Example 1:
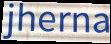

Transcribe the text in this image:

jherna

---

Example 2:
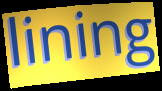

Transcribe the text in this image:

lining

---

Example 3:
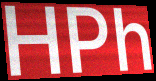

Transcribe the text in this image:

HPh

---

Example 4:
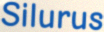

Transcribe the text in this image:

Silurus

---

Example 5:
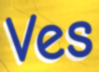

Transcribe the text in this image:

Ves